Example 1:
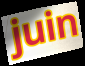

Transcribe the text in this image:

juin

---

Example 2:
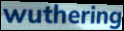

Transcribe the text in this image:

wuthering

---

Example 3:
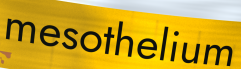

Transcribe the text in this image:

mesothelium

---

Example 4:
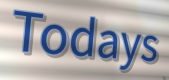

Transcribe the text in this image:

Todays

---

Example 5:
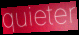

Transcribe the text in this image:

quieter